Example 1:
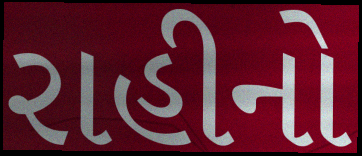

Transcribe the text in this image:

રાહીનો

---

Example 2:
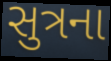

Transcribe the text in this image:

સુત્રના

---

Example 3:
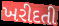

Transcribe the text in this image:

ખરીદતી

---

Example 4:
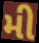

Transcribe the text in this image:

મી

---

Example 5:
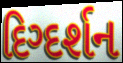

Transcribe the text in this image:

દિગ્દર્શન